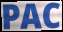
PAC